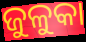
ଜୁଳୁକା